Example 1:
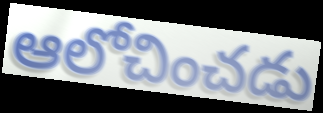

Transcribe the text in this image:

ఆలోచించడు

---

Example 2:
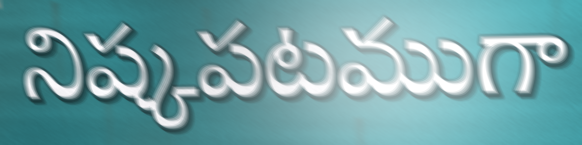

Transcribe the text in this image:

నిష్కపటముగా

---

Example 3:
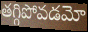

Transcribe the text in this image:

తగ్గిపోవడమో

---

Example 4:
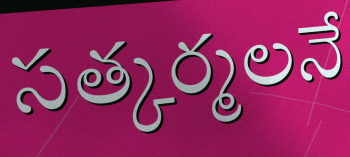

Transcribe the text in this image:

సత్కర్మలనే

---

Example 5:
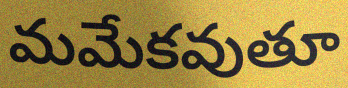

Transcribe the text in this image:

మమేకవుతూ